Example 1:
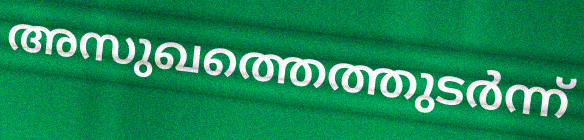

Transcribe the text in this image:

അസുഖത്തെത്തുടർന്ന്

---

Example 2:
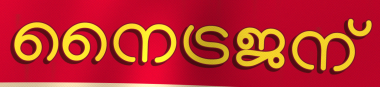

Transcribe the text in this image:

നൈട്രജന്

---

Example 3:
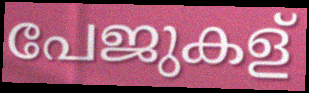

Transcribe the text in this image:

പേജുകള്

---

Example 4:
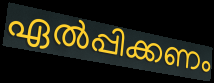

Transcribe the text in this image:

ഏൽപ്പിക്കണം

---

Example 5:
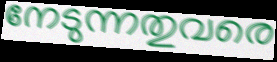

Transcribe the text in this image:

നേടുന്നതുവരെ